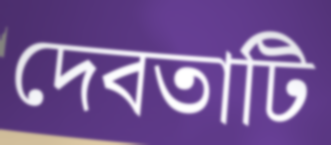
দেবতাটি